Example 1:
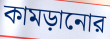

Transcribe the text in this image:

কামড়ানোর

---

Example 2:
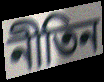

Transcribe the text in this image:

নীতিন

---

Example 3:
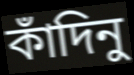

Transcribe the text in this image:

কাঁদিনু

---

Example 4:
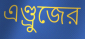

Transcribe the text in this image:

এণ্ড্রুজের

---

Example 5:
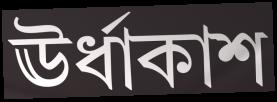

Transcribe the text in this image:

ঊর্ধাকাশ